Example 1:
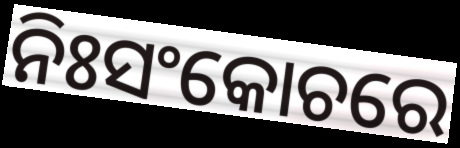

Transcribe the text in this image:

ନିଃସଂକୋଚରେ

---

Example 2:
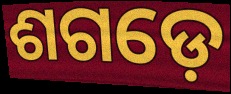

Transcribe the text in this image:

ଶଗଡ଼େ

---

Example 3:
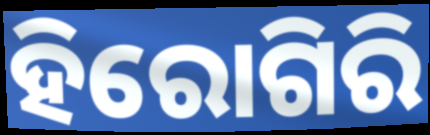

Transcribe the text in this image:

ହିରୋଗିରି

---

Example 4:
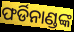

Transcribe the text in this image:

ଫର୍ଡିନାଣ୍ଡଙ୍କ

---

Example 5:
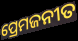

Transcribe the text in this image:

ପ୍ରେମଜନୀତ